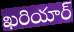
ఖరియార్